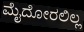
ಮೈದೋರಲಿಲ್ಲ